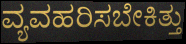
ವ್ಯವಹರಿಸಬೇಕಿತ್ತು